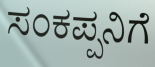
ಸಂಕಪ್ಪನಿಗೆ